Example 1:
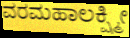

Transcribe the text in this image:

ವರಮಹಾಲಕ್ಷ್ಮೀ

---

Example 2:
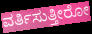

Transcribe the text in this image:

ವರ್ತಿಸುತ್ತೀರೋ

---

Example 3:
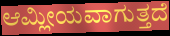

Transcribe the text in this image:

ಆಮ್ಲೀಯವಾಗುತ್ತದೆ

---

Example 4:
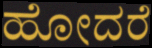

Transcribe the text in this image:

ಹೋದರೆ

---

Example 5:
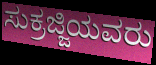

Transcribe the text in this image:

ಸುಕ್ರಜ್ಜಿಯವರು